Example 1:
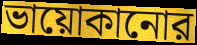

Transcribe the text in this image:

ভায়োকানোর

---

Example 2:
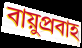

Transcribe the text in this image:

বায়ুপ্রবাহ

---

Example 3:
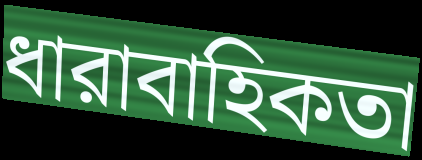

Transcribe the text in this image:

ধারাবাহিকতা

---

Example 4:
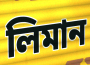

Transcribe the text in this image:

লিমান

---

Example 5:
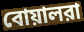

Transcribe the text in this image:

বোয়ালরা